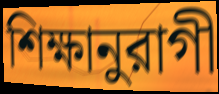
শিক্ষানুরাগী